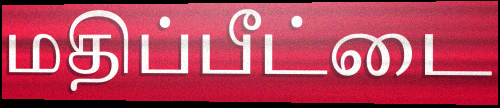
மதிப்பீட்டை